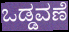
ಒಡ್ಡವಣೆ